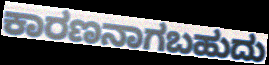
ಕಾರಣನಾಗಬಹುದು